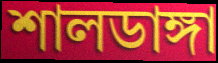
শালডাঙ্গা